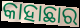
କାହାଛାର